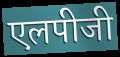
एलपीजी